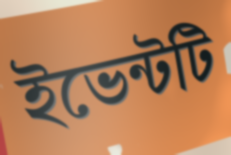
ইভেন্টটি